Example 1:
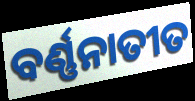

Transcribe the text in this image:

ବର୍ଣ୍ଣନାତୀତ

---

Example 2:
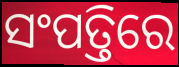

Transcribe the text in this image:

ସଂପତ୍ତିରେ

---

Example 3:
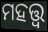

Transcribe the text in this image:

ମହତ୍ତ୍ବ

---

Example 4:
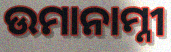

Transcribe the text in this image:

ଉମାନାମ୍ନୀ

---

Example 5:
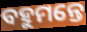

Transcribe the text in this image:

ବହୁମନ୍ତେ